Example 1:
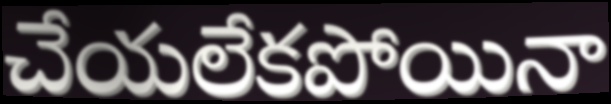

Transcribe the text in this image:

చేయలేకపోయినా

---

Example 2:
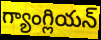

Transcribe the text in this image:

గ్యాంగ్లియన్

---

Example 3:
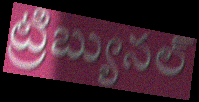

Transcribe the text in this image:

ట్రిబ్యునల్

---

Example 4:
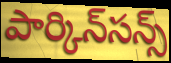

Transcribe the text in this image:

పార్కిన్‌సన్స్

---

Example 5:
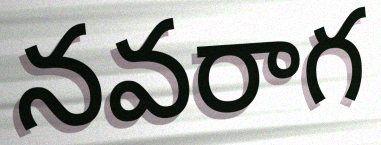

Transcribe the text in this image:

నవరాగ